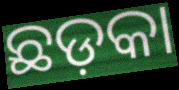
ଛଡ଼କା